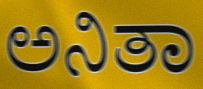
ಅನಿತಾ